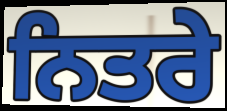
ਨਿਤਰੇ